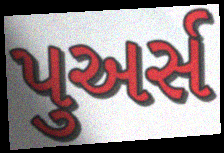
પુઅર્સ